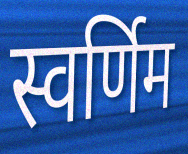
स्वर्णिम